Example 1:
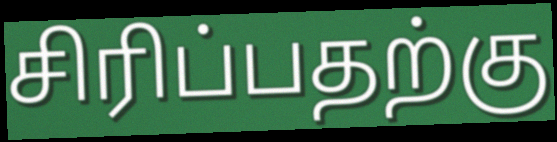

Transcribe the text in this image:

சிரிப்பதற்கு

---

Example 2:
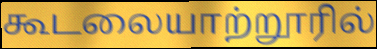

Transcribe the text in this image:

கூடலையாற்றூரில்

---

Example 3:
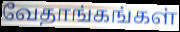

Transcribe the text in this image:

வேதாங்கங்கள்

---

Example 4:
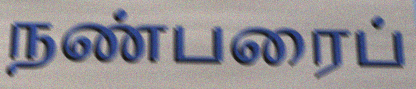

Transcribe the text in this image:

நண்பரைப்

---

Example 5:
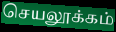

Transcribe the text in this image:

செயலூக்கம்